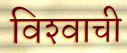
विश्वाची